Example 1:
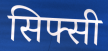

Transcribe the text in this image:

सिफ्सी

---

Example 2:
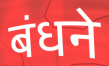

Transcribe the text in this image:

बंधने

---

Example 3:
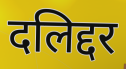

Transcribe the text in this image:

दलिद्दर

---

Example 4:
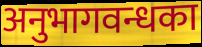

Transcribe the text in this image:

अनुभागवन्धका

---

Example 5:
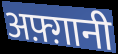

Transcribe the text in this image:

अफ़्ग़ानी